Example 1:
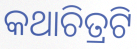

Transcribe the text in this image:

କଥାଚିତ୍ରଟି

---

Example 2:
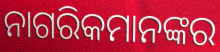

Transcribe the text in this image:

ନାଗରିକମାନଙ୍କର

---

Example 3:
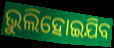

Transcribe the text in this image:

ଭୁଲିହୋଇଯିବ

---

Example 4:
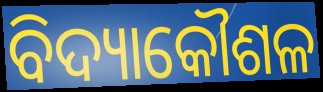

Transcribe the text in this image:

ବିଦ୍ୟାକୌଶଳ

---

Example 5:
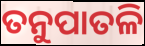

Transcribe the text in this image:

ତନୁପାତଳି